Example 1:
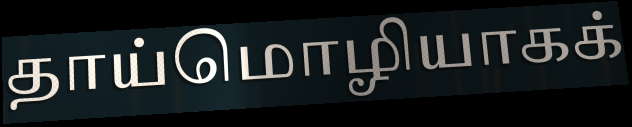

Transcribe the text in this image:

தாய்மொழியாகக்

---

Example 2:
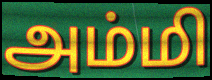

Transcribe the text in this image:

அம்மி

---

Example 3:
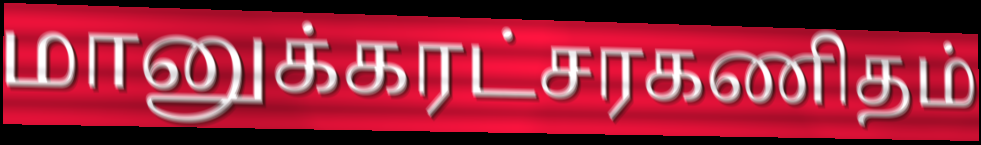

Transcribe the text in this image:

மானுக்கரட்சரகணிதம்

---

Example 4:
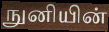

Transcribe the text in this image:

நுனியின்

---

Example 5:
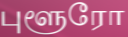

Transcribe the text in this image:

புளூரோ